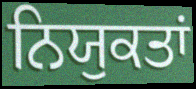
ਨਿਯੁਕਤਾਂ